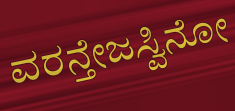
ವರನ್ತೇಜಸ್ವಿನೋ